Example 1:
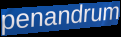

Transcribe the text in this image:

penandrum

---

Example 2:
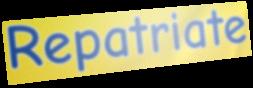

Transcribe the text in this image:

Repatriate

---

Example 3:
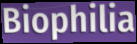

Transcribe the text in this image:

Biophilia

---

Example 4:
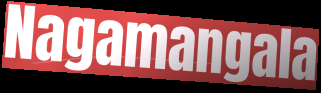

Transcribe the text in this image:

Nagamangala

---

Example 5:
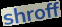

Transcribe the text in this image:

shroff